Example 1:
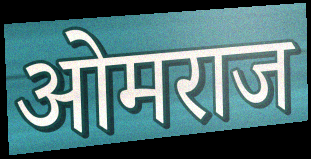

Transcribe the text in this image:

ओमराज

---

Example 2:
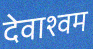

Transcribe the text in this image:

देवाश्वम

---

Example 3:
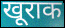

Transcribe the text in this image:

खूराक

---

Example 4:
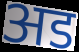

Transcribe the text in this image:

अड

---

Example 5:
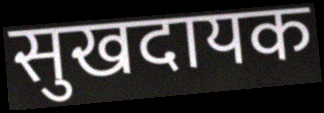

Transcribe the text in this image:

सुखदायक